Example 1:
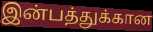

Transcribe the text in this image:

இன்பத்துக்கான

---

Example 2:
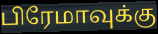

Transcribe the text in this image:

பிரேமாவுக்கு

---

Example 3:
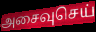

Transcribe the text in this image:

அசைவுசெய்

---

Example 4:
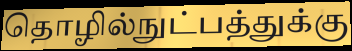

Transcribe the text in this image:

தொழில்நுட்பத்துக்கு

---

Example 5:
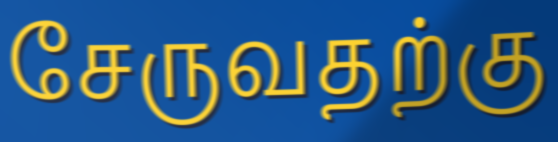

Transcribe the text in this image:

சேருவதற்கு